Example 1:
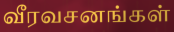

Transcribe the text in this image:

வீரவசனங்கள்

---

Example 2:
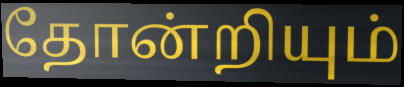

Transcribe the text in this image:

தோன்றியும்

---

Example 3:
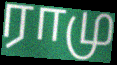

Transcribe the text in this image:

ராமு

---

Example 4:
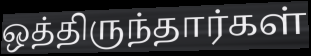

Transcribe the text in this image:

ஒத்திருந்தார்கள்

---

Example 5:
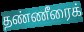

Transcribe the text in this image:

தண்ணீரைக்